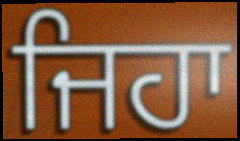
ਜਿਹਾ